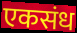
एकसंध